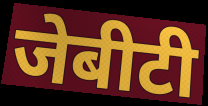
जेबीटी